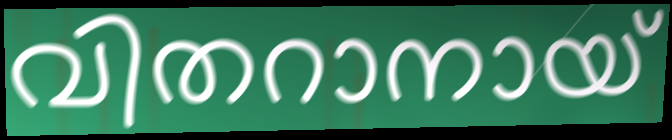
വിതറാനായ്